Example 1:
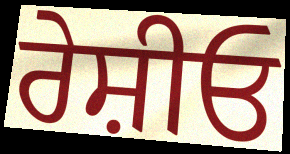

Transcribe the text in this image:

ਰੇਸ਼ੀਓ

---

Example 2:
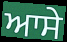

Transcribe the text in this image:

ਆਸੇ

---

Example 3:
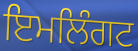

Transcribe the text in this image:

ਇਮਲਿੰਗਟ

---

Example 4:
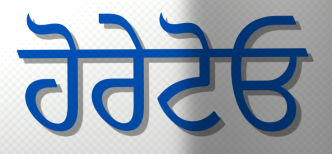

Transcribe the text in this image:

ਹੋਰੇਟੋਓ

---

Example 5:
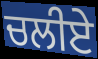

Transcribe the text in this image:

ਚਲੀਏ